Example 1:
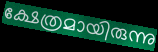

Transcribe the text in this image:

ക്ഷേത്രമായിരുന്നു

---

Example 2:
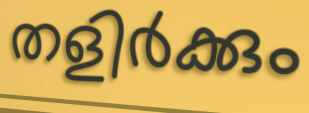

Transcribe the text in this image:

തളിർക്കും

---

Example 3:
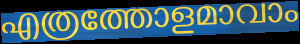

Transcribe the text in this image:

എത്രത്തോളമാവാം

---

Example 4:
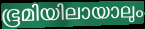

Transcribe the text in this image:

ഭൂമിയിലായാലും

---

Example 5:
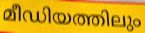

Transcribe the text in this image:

മീഡിയത്തിലും